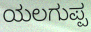
ಯಲಗುಪ್ಪ